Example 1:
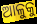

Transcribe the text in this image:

ଆଳୁକୁ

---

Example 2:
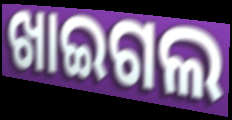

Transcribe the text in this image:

ଖାଇଗଲ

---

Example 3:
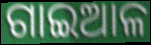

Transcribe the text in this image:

ଗାଇଆଳ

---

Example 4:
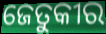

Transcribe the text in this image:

ଜେତୁକୀର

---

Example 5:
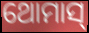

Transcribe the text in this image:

ଥୋମାସ୍